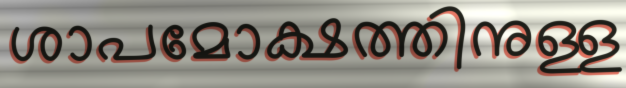
ശാപമോക്ഷത്തിനുള്ള